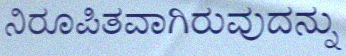
ನಿರೂಪಿತವಾಗಿರುವುದನ್ನು